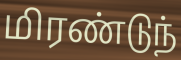
மிரண்டுந்